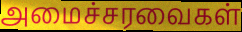
அமைச்சரவைகள்